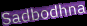
Sadbodhna